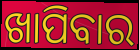
ଖାପିବାର